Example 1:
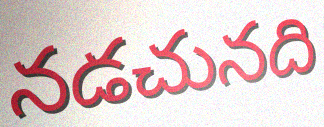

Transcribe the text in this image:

నడచునది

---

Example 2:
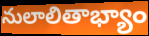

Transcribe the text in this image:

నులాలితాభ్యాం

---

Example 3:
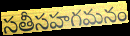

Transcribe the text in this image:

సతీసహగమనం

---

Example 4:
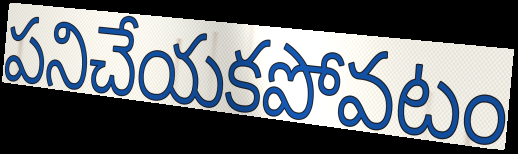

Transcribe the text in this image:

పనిచేయకపోవటం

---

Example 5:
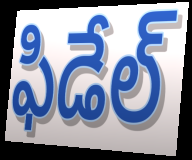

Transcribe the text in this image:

ఫిడేల్